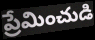
ప్రేమించుడి